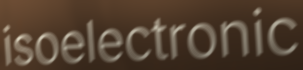
isoelectronic